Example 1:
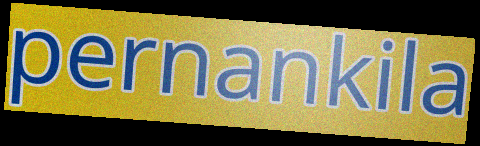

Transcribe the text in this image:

pernankila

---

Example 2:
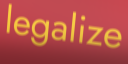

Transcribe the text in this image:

legalize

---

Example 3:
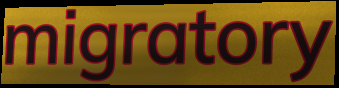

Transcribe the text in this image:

migratory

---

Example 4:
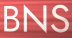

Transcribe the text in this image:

BNS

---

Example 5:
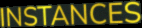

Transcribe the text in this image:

INSTANCES